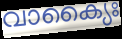
വാക്യൈഃ